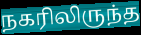
நகரிலிருந்த